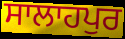
ਸਾਲਾਹਪੁਰ